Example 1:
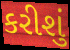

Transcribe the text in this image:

કરીશું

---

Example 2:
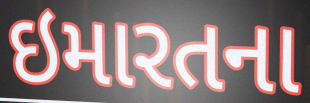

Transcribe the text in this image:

ઇમારતના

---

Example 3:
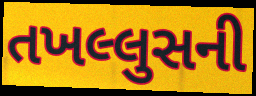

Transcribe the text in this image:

તખલ્લુસની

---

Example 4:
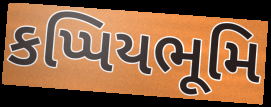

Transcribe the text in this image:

કપ્પિયભૂમિ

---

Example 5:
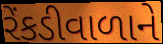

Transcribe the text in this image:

રેંકડીવાળાને